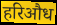
हरिऔध